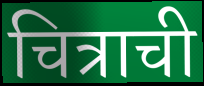
चित्राची